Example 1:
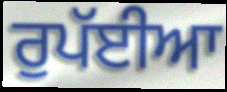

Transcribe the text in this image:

ਰੁਪੱਈਆ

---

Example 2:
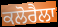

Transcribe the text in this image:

ਕਲੋਰੈਲਾ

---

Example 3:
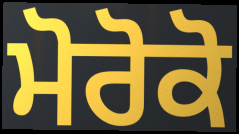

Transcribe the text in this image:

ਮੋਰੋਕੋ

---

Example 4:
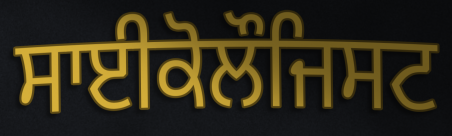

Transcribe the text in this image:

ਸਾਈਕੋਲੌਜਿਸਟ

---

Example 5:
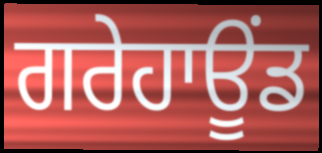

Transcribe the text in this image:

ਗਰੇਹਾਊਂਡ